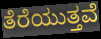
ತೆರೆಯುತ್ತವೆ